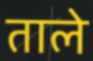
ताले